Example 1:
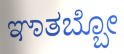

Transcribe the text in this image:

ಞಾತಬ್ಬೋ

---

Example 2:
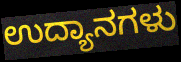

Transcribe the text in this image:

ಉದ್ಯಾನಗಳು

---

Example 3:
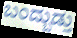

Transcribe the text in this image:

ಬಂದ್ಬುಡ್ತು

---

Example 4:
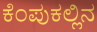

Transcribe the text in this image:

ಕೆಂಪುಕಲ್ಲಿನ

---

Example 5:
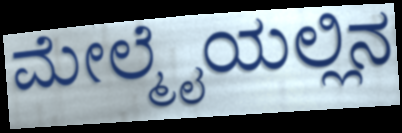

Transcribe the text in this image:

ಮೇಲ್ಮೈಯಲ್ಲಿನ